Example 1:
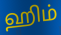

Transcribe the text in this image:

ஹிம்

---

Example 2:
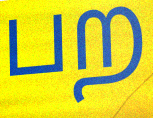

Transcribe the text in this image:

பற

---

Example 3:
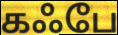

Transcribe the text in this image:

கஃபே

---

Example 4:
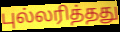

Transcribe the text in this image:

புல்லரித்தது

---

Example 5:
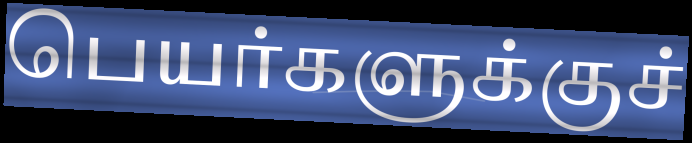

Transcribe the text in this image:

பெயர்களுக்குச்